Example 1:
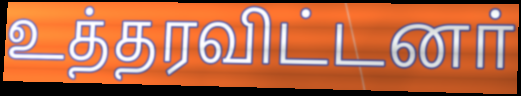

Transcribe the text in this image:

உத்தரவிட்டனர்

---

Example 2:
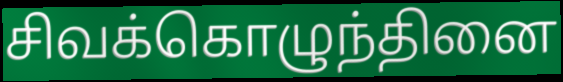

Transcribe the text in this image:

சிவக்கொழுந்தினை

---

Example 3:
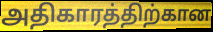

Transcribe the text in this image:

அதிகாரத்திற்கான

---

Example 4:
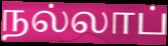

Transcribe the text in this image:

நல்லாப்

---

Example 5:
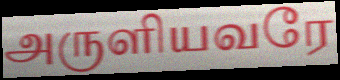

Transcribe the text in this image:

அருளியவரே